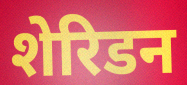
शेरिडन